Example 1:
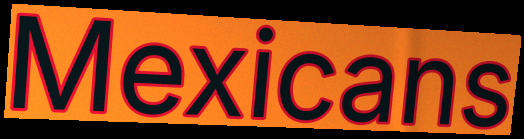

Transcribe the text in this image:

Mexicans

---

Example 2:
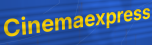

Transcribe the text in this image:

Cinemaexpress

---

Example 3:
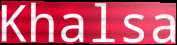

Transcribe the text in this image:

Khalsa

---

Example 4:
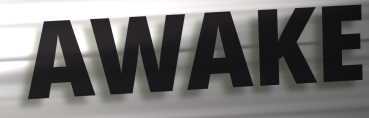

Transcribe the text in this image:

AWAKE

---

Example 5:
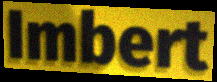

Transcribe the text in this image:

Imbert